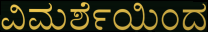
ವಿಮರ್ಶೆಯಿಂದ